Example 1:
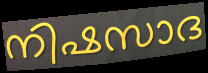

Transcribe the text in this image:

നിഷസാദ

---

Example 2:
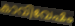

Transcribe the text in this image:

കാവിവേഷം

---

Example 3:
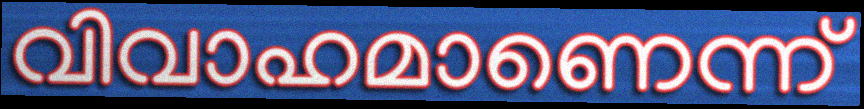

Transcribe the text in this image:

വിവാഹമാണെന്ന്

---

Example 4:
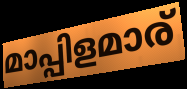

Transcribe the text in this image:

മാപ്പിളമാര്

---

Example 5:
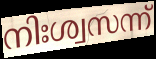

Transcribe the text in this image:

നിഃശ്വസന്ന്